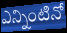
ఎన్నింటినో